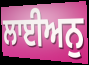
ਲਾਈਅਨੁ